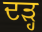
ਦੜ੍ਹ